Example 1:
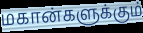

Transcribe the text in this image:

மகான்களுக்கும்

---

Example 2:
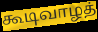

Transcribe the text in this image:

கூடிவாழத்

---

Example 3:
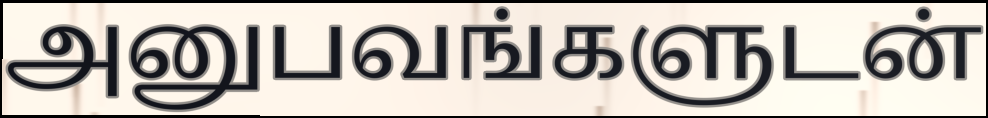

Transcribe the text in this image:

அனுபவங்களுடன்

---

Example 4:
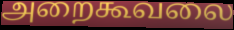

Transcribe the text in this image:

அறைகூவலை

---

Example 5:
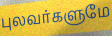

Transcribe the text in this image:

புலவர்களுமே